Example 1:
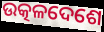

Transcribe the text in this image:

ଉତ୍କଳଦେଶେ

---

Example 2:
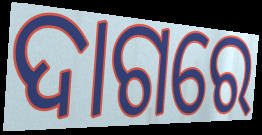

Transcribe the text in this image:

ଦାଗରେ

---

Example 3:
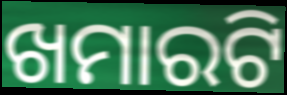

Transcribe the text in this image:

ଖମାରଟି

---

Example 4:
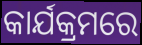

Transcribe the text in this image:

କାର୍ଯକ୍ରମରେ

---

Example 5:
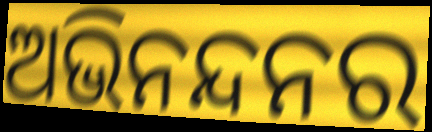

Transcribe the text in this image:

ଅଭିନନ୍ଦନର